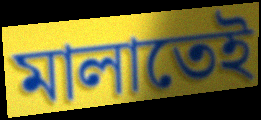
মালাতেই